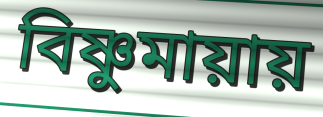
বিষ্ণুমায়ায়